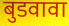
बुडवावा